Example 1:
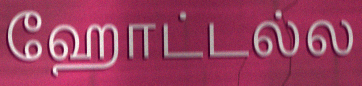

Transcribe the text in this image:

ஹோட்டல்ல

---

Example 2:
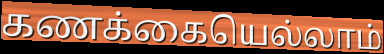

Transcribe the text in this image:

கணக்கையெல்லாம்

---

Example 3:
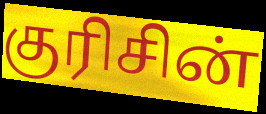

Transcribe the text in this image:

குரிசின்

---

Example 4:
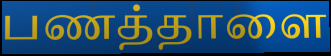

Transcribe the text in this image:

பணத்தாளை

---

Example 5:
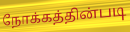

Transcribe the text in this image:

நோக்கத்தின்படி